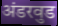
अंडरवुड